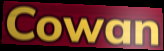
Cowan